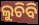
ଲୁଚିବି